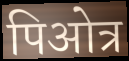
पिओत्र